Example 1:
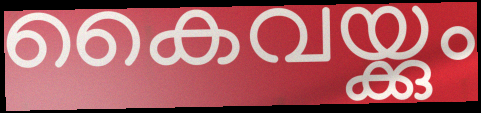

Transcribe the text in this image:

കൈവയ്ക്കും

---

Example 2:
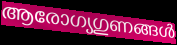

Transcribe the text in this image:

ആരോഗ്യഗുണങ്ങൾ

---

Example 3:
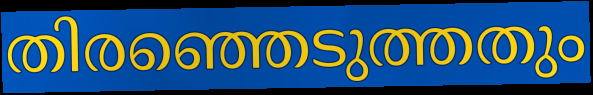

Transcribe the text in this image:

തിരഞ്ഞെടുത്തതും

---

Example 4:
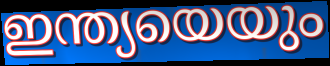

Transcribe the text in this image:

ഇന്ത്യയെയും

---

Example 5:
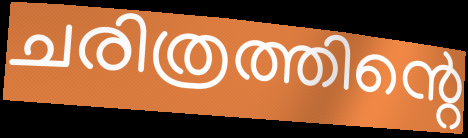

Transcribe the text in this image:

ചരിത്രത്തിന്റെ